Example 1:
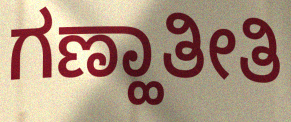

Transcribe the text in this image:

ಗಣ್ಹಾತೀತಿ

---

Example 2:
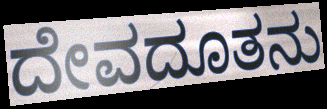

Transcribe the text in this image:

ದೇವದೂತನು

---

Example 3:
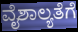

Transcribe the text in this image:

ವೈಶಾಲ್ಯತೆಗೆ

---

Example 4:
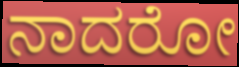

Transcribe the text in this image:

ನಾದರೋ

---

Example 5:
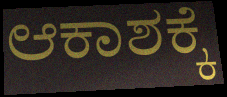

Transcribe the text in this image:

ಆಕಾಶಕ್ಕೆ